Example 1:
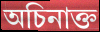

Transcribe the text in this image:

অচিনাক্ত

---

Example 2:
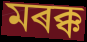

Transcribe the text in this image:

মৰক্ক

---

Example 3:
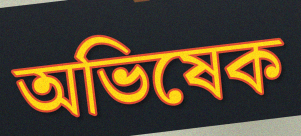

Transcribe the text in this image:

অভিষেক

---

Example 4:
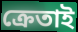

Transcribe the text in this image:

ক্ৰেতাই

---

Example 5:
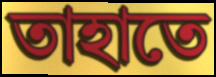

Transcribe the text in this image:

তাহাতে